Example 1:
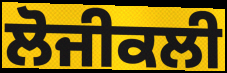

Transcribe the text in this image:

ਲੋਜੀਕਲੀ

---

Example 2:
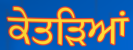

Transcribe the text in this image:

ਕੇਤੜਿਆਂ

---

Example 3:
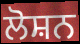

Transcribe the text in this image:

ਲੋਸ਼ਨ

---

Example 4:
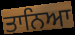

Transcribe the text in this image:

ਤਾਨਿਆ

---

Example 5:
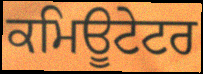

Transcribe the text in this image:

ਕਮਿਊਟੇਟਰ